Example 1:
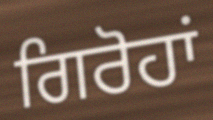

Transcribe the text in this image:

ਗਿਰੋਹਾਂ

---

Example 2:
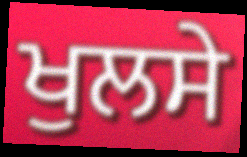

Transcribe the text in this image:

ਖੁਲਸੇ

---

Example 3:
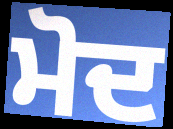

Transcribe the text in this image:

ਮੋਦ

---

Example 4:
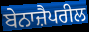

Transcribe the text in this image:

ਬੇਨਾਜ਼ੈਪਰੀਲ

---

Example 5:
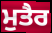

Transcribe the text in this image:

ਮੁਤੈਰ